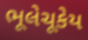
ભૂલેચૂકેય